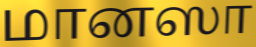
மானஸா